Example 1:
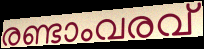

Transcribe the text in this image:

രണ്ടാംവരവ്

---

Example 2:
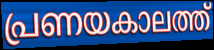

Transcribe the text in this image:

പ്രണയകാലത്ത്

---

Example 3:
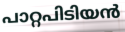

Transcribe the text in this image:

പാറ്റപിടിയൻ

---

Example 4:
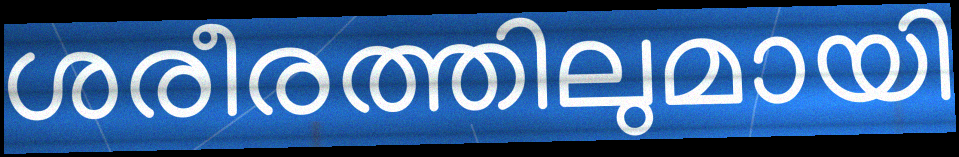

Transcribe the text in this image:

ശരീരത്തിലുമായി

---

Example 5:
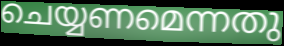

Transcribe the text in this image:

ചെയ്യണമെന്നതു